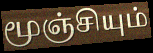
மூஞ்சியும்